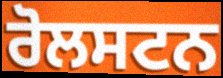
ਰੋਲਸਟਨ